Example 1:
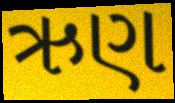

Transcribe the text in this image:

ઋણ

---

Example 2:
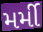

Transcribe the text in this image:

મર્મી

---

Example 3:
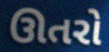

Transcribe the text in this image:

ઊતરો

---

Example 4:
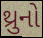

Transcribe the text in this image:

થ્રુનો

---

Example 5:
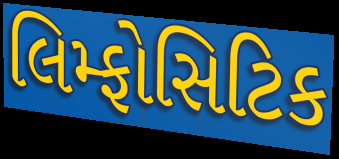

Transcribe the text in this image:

લિમ્ફોસિટિક